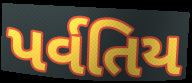
પર્વતિય